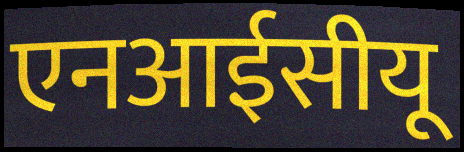
एनआईसीयू